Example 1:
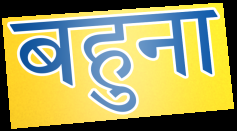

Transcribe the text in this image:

बहुना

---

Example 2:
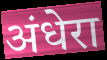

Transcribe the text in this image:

अंधेरा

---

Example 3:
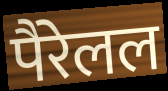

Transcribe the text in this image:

पैरेलल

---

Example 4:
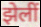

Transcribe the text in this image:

झेलीं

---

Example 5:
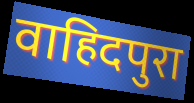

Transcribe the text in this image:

वाहिदपुरा